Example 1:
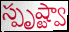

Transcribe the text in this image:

స్పృష్ట్వా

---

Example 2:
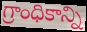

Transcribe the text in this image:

గ్రాంధికాన్ని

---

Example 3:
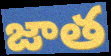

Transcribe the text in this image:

జాత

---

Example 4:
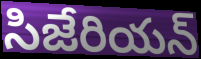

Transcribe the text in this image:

సిజేరియన్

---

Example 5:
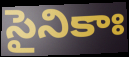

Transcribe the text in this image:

సైనికాః